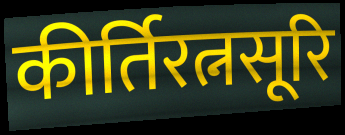
कीर्तिरत्नसूरि